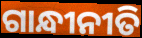
ଗାନ୍ଧୀନୀତି